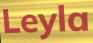
Leyla